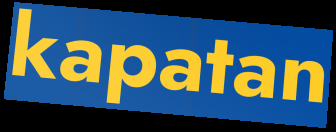
kapatan